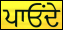
ਪਾਓਂਦੇ